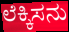
ಲೆಕ್ಕಿಸನು